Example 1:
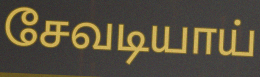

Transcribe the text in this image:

சேவடியாய்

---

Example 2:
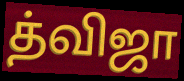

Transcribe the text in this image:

த்விஜா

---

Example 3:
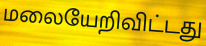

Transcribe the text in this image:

மலையேறிவிட்டது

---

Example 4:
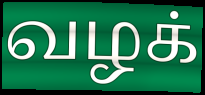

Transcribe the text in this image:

வழக்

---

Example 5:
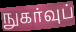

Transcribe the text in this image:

நுகர்வுப்